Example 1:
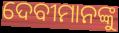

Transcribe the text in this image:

ଦେବୀମାନଙ୍କୁ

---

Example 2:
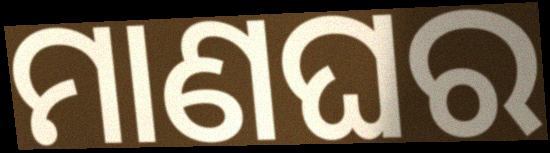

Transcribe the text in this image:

ମାଣଘର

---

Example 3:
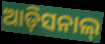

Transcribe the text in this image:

ଆଡ଼ିସନାଲ୍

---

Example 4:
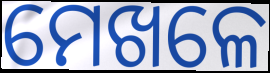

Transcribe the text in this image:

ମେଖଳେ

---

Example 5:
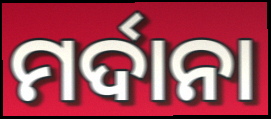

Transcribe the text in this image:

ମର୍ଦାନା